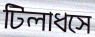
টিলাধসে